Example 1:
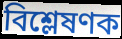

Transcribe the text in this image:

বিশ্লেষণক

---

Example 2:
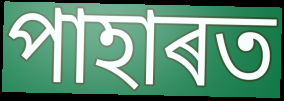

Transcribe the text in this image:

পাহাৰত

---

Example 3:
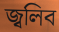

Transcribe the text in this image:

জ্বলিব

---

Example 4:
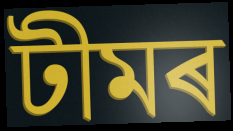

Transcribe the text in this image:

টীমৰ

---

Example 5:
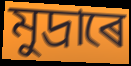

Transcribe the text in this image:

মুদ্ৰাৰে